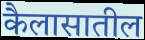
कैलासातील